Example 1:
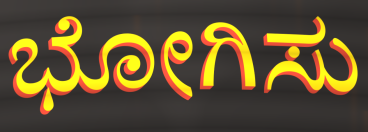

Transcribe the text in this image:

ಭೋಗಿಸು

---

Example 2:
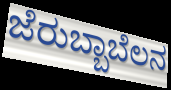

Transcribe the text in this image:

ಜೆರುಬ್ಬಾಬೆಲನ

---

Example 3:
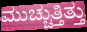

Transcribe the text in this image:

ಮುಚ್ಚುತ್ತಿತ್ತು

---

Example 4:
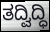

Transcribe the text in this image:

ತದ್ವಿದ್ಧಿ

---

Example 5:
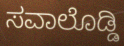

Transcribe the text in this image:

ಸವಾಲೊಡ್ಡಿ